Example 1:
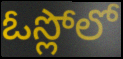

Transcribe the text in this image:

ఓస్లోలో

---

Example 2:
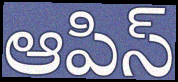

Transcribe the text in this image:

ఆపిస్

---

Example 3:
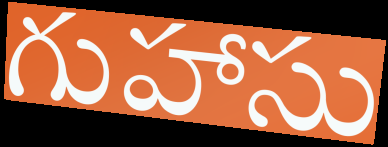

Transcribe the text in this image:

గుహాసు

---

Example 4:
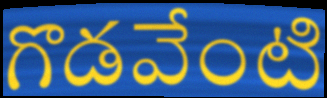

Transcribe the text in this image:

గొడవేంటి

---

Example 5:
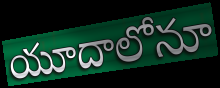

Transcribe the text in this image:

యూదాలోనూ